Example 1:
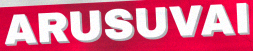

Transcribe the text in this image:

ARUSUVAI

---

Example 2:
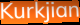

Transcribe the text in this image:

Kurkjian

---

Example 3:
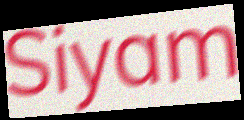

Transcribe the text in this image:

Siyam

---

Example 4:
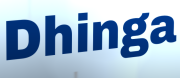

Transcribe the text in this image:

Dhinga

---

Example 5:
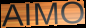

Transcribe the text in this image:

AIMO